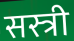
सस्त्री